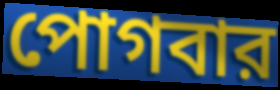
পোগবার